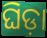
ଘିଡ଼ା